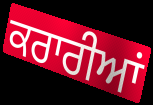
ਕਰਾਰੀਆਂ